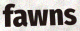
fawns